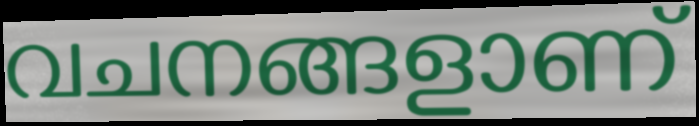
വചനങ്ങളാണ്